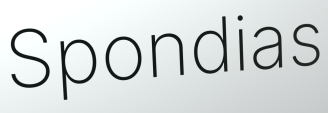
Spondias